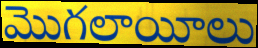
మొగలాయీలు